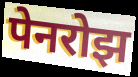
पेनरोझ